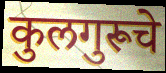
कुलगुरूचे